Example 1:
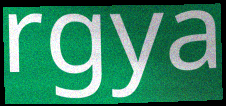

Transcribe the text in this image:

rgya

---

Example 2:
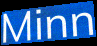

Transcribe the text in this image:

Minn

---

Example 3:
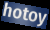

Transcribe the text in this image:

hotoy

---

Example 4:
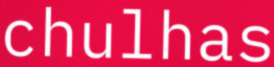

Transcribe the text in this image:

chulhas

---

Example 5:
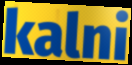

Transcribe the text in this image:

kalni